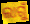
ଲାଗୁଁ